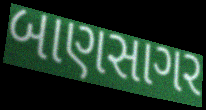
બાણસાગર